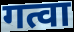
गत्वा